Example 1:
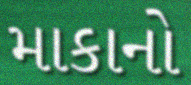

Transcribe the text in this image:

માકાનો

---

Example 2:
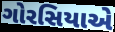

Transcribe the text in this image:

ગોરસિયાએ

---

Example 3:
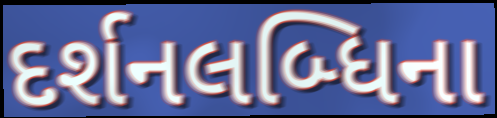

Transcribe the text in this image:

દર્શનલબ્ધિના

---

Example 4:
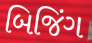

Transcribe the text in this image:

બિજિંગ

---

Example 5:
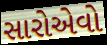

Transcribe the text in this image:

સારોએવો